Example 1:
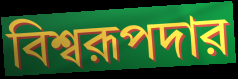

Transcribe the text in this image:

বিশ্বরূপদার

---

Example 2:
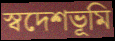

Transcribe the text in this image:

স্বদেশভূমি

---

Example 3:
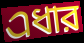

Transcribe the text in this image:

এধার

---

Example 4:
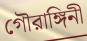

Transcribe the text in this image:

গৌরাঙ্গিনী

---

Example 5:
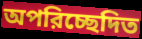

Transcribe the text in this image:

অপরিচ্ছেদিত